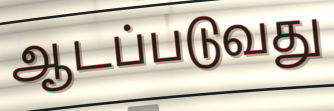
ஆடப்படுவது